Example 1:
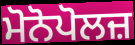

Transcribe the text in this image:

ਮੋਨੋਪੋਲਜ਼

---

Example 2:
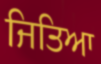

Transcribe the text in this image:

ਜਿਤਿਆ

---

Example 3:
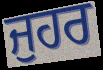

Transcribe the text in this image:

ਜੁਹਰ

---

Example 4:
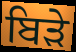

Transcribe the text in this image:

ਬਿੜੇ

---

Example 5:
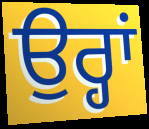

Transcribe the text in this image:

ਉਰ੍ਹਾਂ